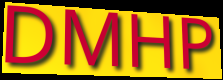
DMHP